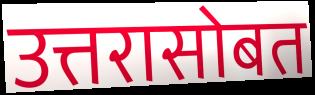
उत्तरासोबत